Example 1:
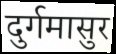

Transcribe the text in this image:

दुर्गमासुर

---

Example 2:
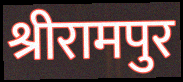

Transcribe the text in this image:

श्रीरामपुर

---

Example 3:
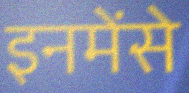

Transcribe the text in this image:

इनमेंसे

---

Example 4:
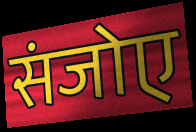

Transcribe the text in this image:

संजोए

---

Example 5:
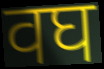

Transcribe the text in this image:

वघ